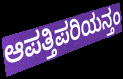
ಆಪತ್ತಿಪರಿಯನ್ತಂ